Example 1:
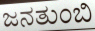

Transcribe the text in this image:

ಜನತುಂಬಿ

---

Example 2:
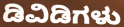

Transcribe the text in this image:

ಡಿವಿಡಿಗಳು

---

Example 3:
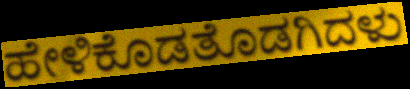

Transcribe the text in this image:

ಹೇಳಿಕೊಡತೊಡಗಿದಳು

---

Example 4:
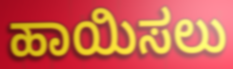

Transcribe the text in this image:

ಹಾಯಿಸಲು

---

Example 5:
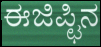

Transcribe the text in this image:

ಈಜಿಪ್ಟಿನ